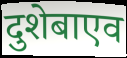
दुशेबाएव